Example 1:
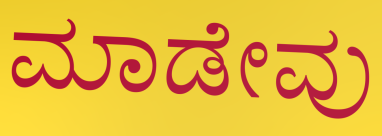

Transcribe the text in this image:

ಮಾಡೇವು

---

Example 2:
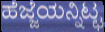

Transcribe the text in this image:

ಹೆಜ್ಜೆಯನ್ನಿಟ್ಟ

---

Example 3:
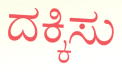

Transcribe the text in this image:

ದಕ್ಕಿಸು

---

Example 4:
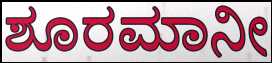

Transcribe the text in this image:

ಶೂರಮಾನೀ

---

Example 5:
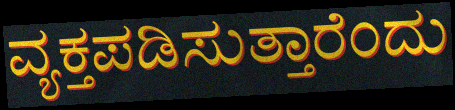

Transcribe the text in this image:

ವ್ಯಕ್ತಪಡಿಸುತ್ತಾರೆಂದು